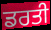
ਡਰਤੀ